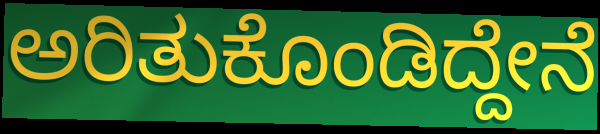
ಅರಿತುಕೊಂಡಿದ್ದೇನೆ